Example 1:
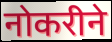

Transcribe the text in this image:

नोकरीने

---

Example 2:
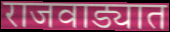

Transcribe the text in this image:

राजवाड्यात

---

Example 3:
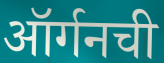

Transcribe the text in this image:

ऑर्गनची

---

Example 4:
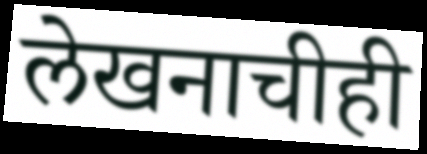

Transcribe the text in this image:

लेखनाचीही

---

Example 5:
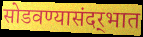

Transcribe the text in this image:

सोडवण्यासंदर्भात